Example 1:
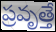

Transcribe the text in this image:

ప్రవృత్తే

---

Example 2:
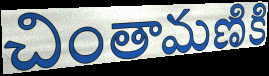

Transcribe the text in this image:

చింతామణికి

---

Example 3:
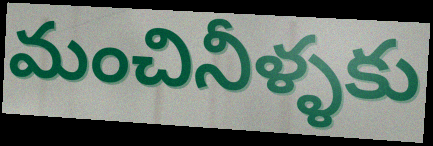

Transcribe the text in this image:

మంచినీళ్ళకు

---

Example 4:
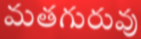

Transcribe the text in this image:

మతగురువు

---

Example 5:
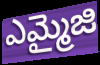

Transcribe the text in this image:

ఎమ్మైజి